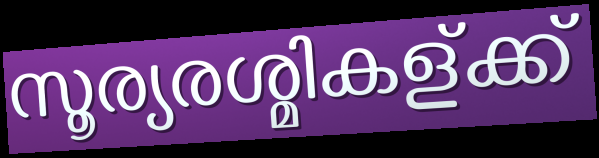
സൂര്യരശ്മികള്ക്ക്